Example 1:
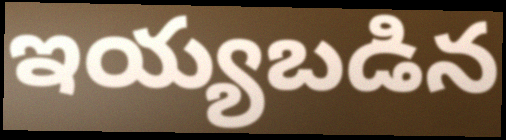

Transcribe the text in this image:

ఇయ్యబడిన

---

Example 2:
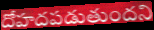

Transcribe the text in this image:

దోహదపడుతుందని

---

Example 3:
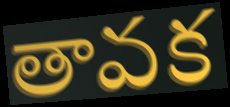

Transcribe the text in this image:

తావక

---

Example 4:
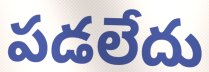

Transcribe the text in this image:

పడలేదు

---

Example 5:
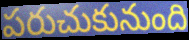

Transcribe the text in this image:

పరుచుకునుంది